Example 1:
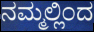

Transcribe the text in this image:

ನಮ್ಮಲ್ಲಿಂದ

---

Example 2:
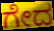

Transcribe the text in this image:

ಗೇದ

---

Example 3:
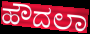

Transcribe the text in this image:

ಹೌದಲಾ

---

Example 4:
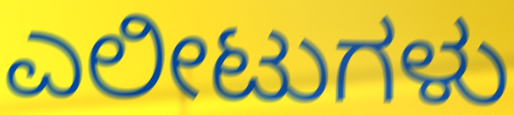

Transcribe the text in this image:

ಎಲೀಟುಗಳು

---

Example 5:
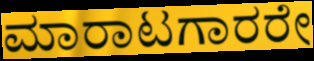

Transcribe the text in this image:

ಮಾರಾಟಗಾರರೇ